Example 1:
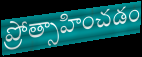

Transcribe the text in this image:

ప్రోత్సాహించడం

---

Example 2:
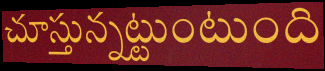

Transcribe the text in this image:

చూస్తున్నట్టుంటుంది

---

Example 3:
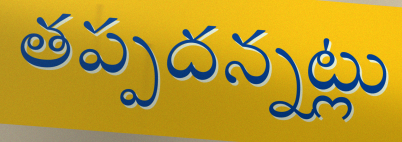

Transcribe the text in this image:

తప్పదన్నట్లు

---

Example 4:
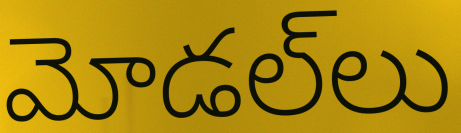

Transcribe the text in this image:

మోడల్‌లు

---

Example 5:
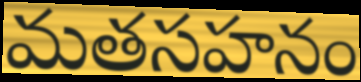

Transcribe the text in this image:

మతసహనం